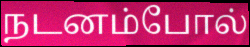
நடனம்போல்